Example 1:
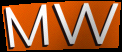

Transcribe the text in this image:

MW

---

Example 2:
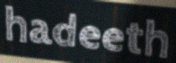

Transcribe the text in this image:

hadeeth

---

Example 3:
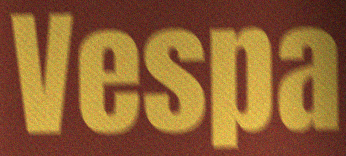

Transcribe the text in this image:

Vespa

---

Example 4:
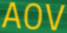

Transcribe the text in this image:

AOV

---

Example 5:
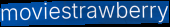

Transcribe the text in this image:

moviestrawberry